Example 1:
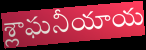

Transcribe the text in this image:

శ్లాఘనీయాయ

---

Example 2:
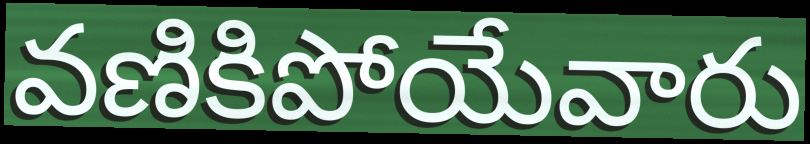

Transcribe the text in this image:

వణికిపోయేవారు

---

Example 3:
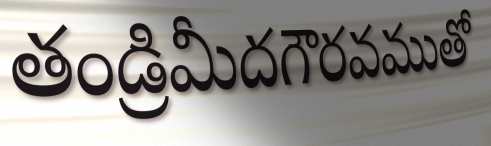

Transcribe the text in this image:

తండ్రిమీదగౌరవముతో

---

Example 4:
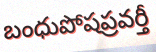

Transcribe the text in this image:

బంధుపోషప్రవర్తీ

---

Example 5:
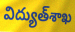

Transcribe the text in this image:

విద్యుత్‌శాఖ